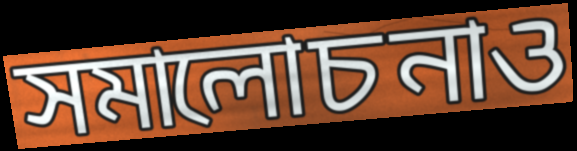
সমালোচনাও